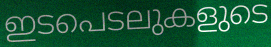
ഇടപെടലുകളുടെ